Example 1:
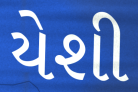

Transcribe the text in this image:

યેશી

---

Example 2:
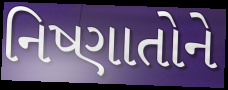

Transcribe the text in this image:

નિષ્ણાતોને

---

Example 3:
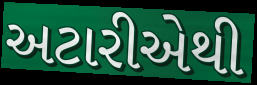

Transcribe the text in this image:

અટારીએથી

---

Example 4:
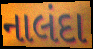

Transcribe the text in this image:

નાલંદા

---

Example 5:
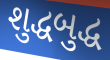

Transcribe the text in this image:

શુદ્ધબુદ્ધ